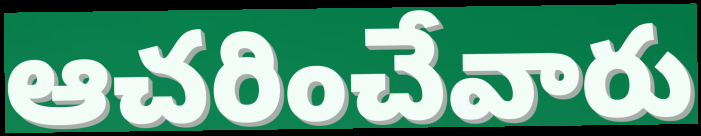
ఆచరించేవారు